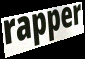
rapper